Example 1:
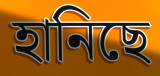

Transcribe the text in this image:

হানিছে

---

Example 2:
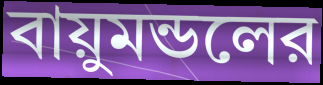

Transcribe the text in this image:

বায়ুমন্ডলের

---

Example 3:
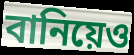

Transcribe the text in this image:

বানিয়েও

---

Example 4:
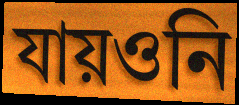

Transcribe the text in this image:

যায়ওনি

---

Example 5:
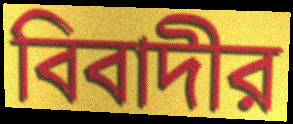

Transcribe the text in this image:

বিবাদীর